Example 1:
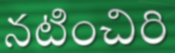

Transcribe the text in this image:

నటించిరి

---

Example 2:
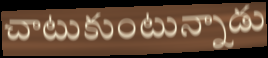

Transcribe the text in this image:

చాటుకుంటున్నాడు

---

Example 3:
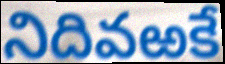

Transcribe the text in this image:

నిదివఱకే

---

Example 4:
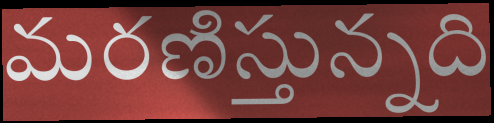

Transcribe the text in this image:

మరణిస్తున్నది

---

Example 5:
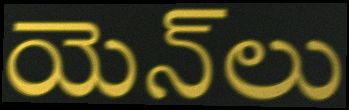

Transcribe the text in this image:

యెన్‌లు